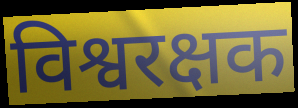
विश्वरक्षक